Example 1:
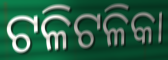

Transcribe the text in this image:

ଟଳିଟଳିକା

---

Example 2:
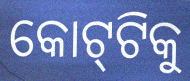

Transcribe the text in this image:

କୋଟ୍‌ଟିକୁ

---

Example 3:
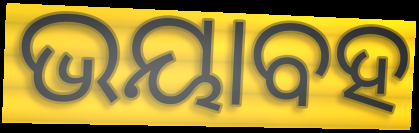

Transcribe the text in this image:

ଭୟାବହ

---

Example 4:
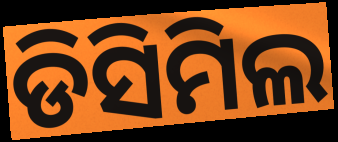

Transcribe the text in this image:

ଡିସିମିଲ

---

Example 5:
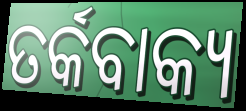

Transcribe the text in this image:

ତର୍କବାକ୍ୟ